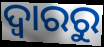
ଦ୍ଵାରରୁ